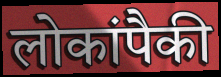
लोकांपैकी